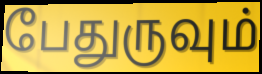
பேதுருவும்